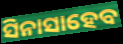
ସିନାସାହେବ